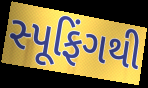
સ્પૂફિંગથી